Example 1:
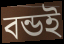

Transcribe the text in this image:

বন্ডই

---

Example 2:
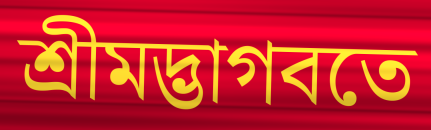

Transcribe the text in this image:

শ্রীমদ্ভাগবতে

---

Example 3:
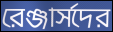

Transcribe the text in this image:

রেঞ্জার্সদের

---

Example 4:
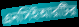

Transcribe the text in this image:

এনসিইআরটির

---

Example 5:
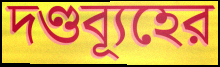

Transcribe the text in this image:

দণ্ডব্যূহের